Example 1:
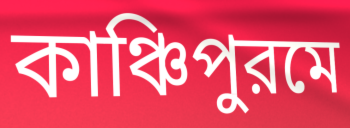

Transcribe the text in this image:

কাঞ্চিপুরমে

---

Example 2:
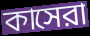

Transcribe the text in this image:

কাসেরা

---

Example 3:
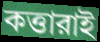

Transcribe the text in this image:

কত্তারাই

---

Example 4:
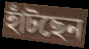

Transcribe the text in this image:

হাঁটছেন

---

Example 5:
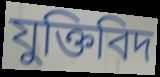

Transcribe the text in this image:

যুক্তিবিদ